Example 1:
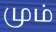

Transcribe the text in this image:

மும்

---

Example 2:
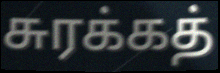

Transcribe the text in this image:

சுரக்கத்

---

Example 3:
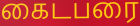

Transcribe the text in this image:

கைடபரை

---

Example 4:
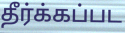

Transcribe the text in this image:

தீர்க்கப்பட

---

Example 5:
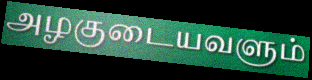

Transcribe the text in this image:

அழகுடையவளும்